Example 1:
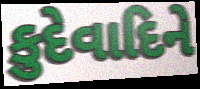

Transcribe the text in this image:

કુદેવાદિને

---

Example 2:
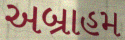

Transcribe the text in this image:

અબ્રાહમ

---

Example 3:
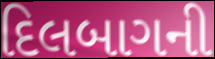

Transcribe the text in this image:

દિલબાગની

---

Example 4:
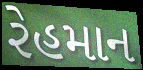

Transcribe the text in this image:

રેહમાન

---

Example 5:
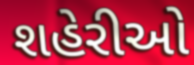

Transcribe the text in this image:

શહેરીઓ